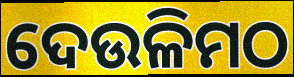
ଦେଉଳିମଠ